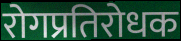
रोगप्रतिरोधक